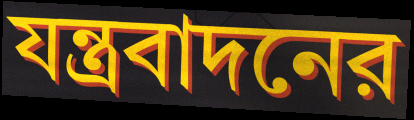
যন্ত্রবাদনের